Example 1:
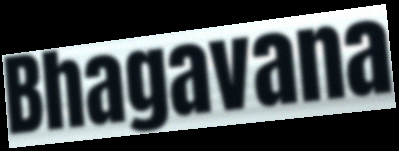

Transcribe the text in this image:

Bhagavana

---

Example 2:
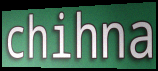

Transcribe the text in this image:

chihna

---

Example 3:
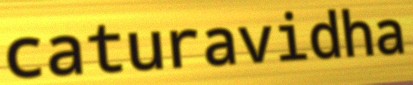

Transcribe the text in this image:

caturavidha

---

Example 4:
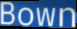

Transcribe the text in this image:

Bown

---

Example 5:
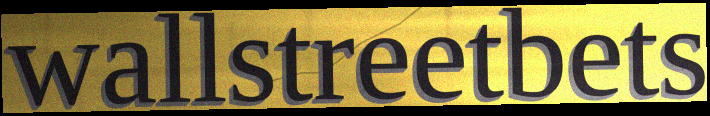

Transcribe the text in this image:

wallstreetbets